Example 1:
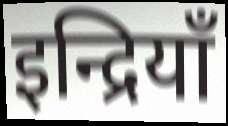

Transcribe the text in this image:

इन्द्रियाँ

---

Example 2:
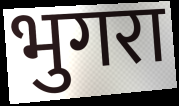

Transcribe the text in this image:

भुगरा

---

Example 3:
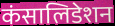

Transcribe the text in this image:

कंसालिडेशन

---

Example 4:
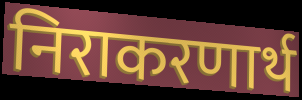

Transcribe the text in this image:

निराकरणार्थ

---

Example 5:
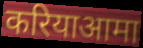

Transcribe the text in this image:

करियाआमा